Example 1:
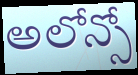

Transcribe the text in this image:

అలోన్సో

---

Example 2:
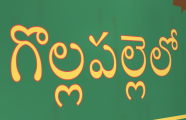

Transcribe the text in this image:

గొల్లపల్లెలో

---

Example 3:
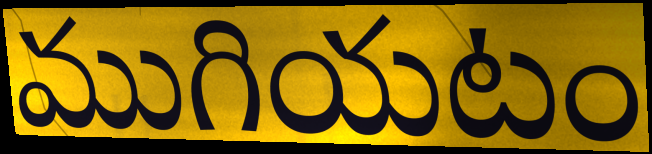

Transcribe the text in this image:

ముగియటం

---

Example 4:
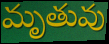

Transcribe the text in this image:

మృతువు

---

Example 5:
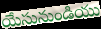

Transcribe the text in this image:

యేసునుండియు